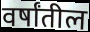
वर्षांतील